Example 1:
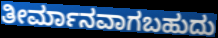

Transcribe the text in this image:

ತೀರ್ಮಾನವಾಗಬಹುದು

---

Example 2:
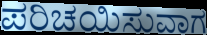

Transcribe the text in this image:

ಪರಿಚಯಿಸುವಾಗ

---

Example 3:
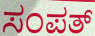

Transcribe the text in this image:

ಸಂಪತ್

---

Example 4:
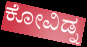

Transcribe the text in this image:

ಕೋವಿಡ್ನ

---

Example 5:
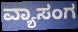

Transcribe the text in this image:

ವ್ಯಾಸಂಗ